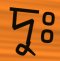
দুঃ